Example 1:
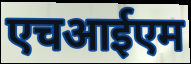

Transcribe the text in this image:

एचआईएम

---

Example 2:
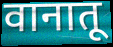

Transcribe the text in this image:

वानातू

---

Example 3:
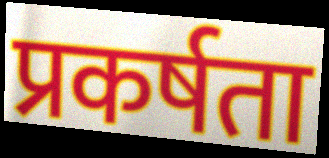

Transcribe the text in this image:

प्रकर्षता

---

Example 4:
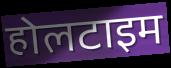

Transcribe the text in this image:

होलटाइम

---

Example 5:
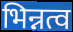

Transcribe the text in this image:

भिन्नत्व